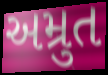
અમ્રુત